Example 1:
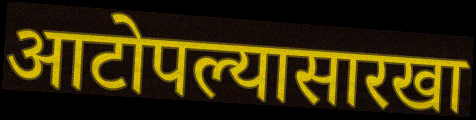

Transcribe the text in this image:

आटोपल्यासारखा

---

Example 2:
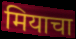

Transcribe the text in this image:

मियाचा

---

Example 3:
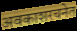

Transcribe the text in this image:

अवकाशरचनेत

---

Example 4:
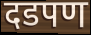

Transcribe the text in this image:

दडपण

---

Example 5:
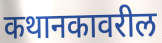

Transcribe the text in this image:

कथानकावरील